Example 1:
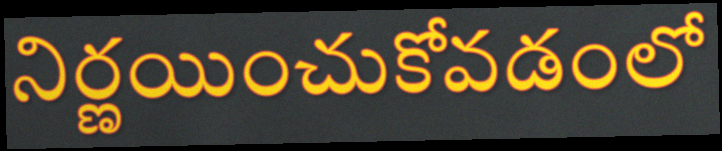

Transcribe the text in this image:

నిర్ణయించుకోవడంలో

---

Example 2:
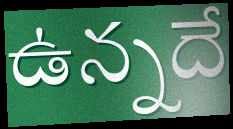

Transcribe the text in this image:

ఉన్నదే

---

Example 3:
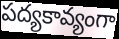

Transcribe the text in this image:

పద్యకావ్యంగా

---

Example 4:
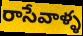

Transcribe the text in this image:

రాసేవాళ్ళ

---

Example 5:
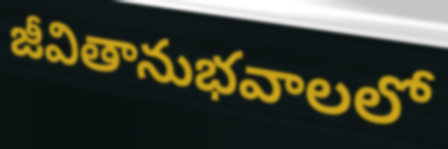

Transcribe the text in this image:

జీవితానుభవాలలో